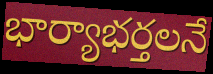
భార్యాభర్తలనే